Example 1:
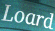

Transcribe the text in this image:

Loard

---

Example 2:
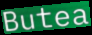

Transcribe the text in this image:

Butea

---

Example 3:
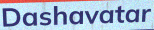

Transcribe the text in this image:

Dashavatar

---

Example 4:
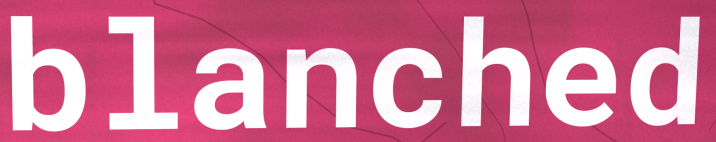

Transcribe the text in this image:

blanched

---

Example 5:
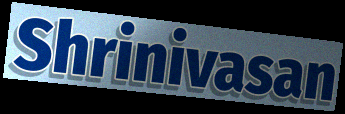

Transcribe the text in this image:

Shrinivasan